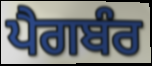
ਪੈਗਬੰਰ